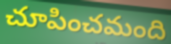
చూపించమంది